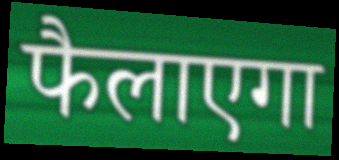
फैलाएगा